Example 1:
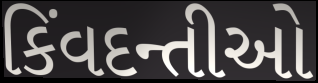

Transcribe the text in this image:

કિંવદન્તીઓ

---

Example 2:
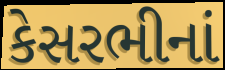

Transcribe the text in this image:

કેસરભીનાં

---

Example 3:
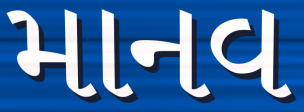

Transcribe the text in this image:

માનવ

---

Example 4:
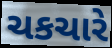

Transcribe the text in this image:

ચકચારે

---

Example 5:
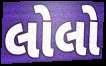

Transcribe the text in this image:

લોલો